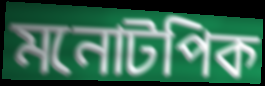
মনোটপিক